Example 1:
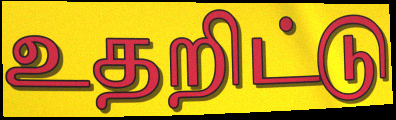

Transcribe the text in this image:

உதறிட்டு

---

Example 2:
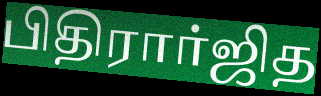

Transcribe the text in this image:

பிதிரார்ஜித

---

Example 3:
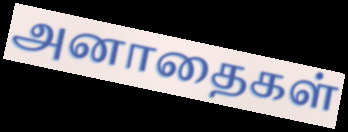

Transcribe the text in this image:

அனாதைகள்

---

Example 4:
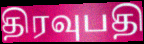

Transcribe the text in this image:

திரவுபதி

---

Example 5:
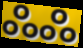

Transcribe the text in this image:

ஃஃ